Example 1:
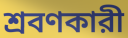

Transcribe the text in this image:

শ্রবণকারী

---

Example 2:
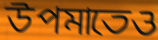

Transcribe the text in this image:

উপমাতেও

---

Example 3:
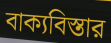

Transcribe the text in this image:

বাক্যবিস্তার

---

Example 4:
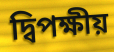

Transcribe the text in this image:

দ্বিপক্ষীয়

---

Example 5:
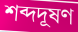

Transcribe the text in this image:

শব্দদূষণ